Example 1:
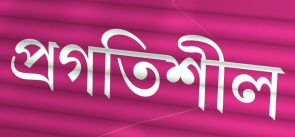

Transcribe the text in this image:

প্রগতিশীল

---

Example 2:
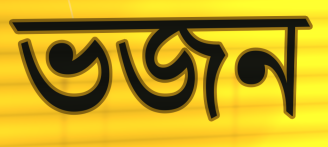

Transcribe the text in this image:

ভজন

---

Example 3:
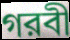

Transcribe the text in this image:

গরবী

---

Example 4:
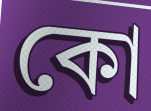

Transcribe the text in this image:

কো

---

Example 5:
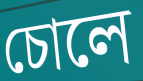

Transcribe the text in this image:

চোলে